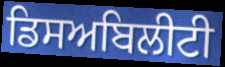
ਡਿਸਅਬਿਲੀਟੀ